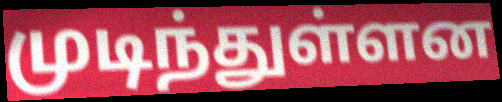
முடிந்துள்ளன